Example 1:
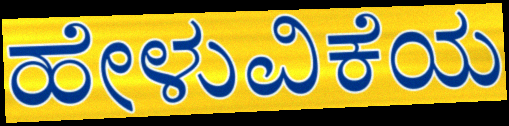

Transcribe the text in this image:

ಹೇಳುವಿಕೆಯ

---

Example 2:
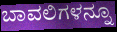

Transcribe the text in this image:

ಬಾವಲಿಗಳನ್ನೂ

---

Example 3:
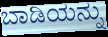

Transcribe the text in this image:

ಬಾಡಿಯನ್ನು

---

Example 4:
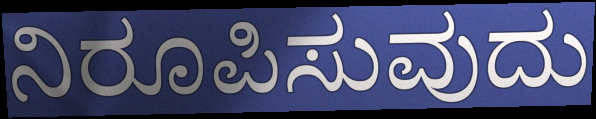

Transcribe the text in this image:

ನಿರೂಪಿಸುವುದು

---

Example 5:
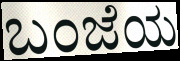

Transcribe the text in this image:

ಬಂಜೆಯ